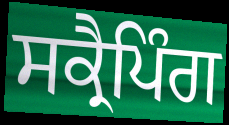
ਸਕ੍ਰੈਪਿੰਗ